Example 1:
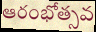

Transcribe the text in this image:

ఆరంభోత్సవ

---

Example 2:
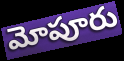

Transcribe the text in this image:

మోపూరు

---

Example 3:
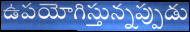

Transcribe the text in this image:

ఉపయోగిస్తున్నప్పుడు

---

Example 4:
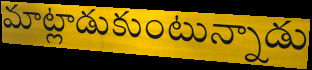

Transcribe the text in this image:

మాట్లాడుకుంటున్నాడు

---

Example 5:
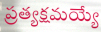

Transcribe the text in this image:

ప్రత్యక్షమయ్యే